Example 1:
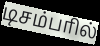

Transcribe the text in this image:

டிசம்பரில்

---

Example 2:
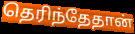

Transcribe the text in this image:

தெரிந்தேதான்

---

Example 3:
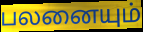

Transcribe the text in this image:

பலனையும்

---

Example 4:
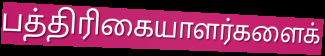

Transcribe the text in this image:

பத்திரிகையாளர்களைக்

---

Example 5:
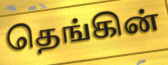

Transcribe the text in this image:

தெங்கின்